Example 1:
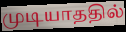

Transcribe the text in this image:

முடியாததில்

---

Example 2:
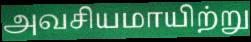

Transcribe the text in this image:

அவசியமாயிற்று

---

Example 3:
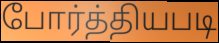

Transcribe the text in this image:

போர்த்தியபடி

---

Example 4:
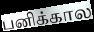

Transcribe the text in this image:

பனிக்கால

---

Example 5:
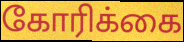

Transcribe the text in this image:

கோரிக்கை